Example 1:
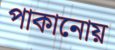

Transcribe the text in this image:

পাকানোয়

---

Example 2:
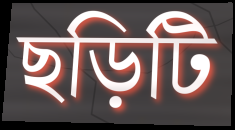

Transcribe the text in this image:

ছড়িটি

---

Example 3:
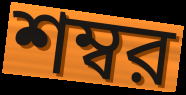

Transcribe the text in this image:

শম্বর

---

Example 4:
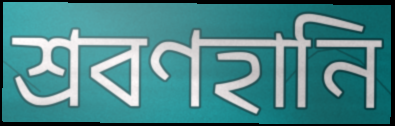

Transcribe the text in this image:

শ্রবণহানি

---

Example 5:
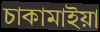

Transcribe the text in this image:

চাকামাইয়া